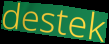
destek